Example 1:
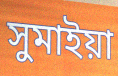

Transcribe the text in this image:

সুমাইয়া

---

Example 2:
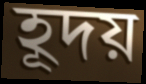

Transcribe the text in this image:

হূদয়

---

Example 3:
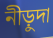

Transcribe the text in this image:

নীড়ুদা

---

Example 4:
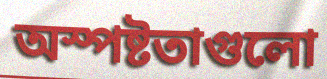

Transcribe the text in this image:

অস্পষ্টতাগুলো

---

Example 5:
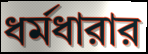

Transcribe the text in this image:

ধর্মধারার